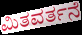
ಮಿತವರ್ತನೆ